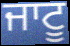
ਜਾਟੂ